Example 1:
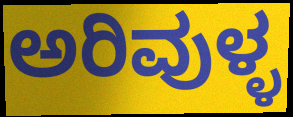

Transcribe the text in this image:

ಅರಿವುಳ್ಳ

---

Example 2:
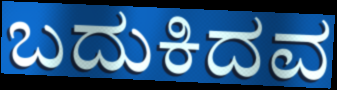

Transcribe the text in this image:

ಬದುಕಿದವ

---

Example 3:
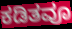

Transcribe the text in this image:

ಕಡಿತವೂ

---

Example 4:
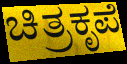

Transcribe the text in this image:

ಚಿತ್ರಕೃಪೆ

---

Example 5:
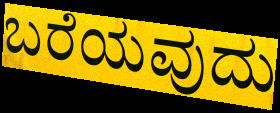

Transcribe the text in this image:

ಬರೆಯವುದು